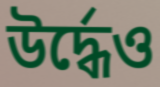
উর্দ্ধেও